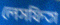
লেসফিতা